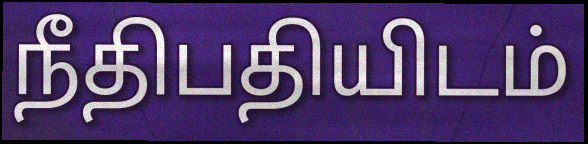
நீதிபதியிடம்